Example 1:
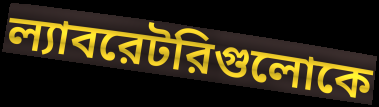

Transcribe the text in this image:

ল্যাবরেটরিগুলোকে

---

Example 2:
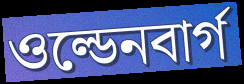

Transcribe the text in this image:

ওল্ডেনবার্গ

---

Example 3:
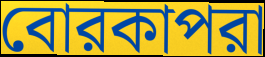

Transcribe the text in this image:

বোরকাপরা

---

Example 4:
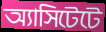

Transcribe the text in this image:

অ্যাসিটেটে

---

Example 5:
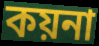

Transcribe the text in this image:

কয়না